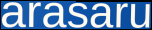
arasaru